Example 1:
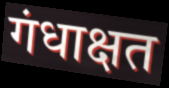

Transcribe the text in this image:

गंधाक्षत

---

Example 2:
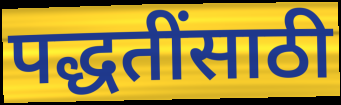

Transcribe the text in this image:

पद्धतींसाठी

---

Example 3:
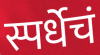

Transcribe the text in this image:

स्पर्धेचं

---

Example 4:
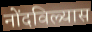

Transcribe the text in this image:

नोंदविल्यास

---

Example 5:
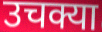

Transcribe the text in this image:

उचक्या